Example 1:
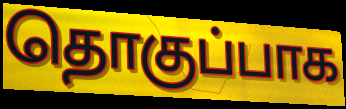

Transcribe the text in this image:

தொகுப்பாக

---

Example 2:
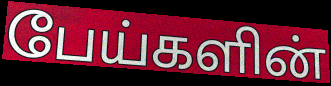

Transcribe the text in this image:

பேய்களின்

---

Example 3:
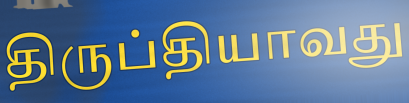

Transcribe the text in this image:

திருப்தியாவது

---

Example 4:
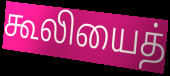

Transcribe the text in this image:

கூலியைத்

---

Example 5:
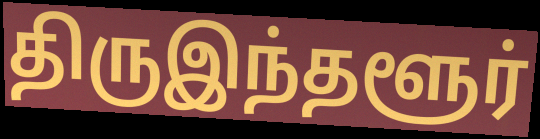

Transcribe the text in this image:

திருஇந்தளூர்